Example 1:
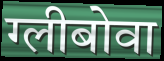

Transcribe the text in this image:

ग्लीबोवा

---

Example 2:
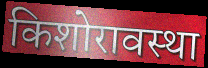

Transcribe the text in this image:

किशोरावस्था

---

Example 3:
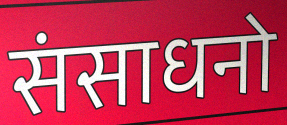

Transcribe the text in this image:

संसाधनो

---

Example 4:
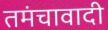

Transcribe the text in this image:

तमंचावादी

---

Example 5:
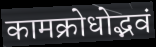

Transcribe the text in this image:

कामक्रोधोद्भवं